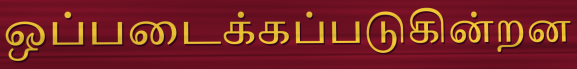
ஒப்படைக்கப்படுகின்றன